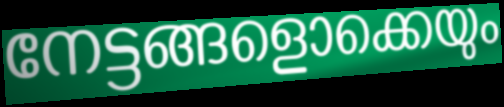
നേട്ടങ്ങളൊക്കെയും